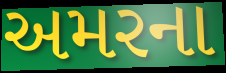
અમરના